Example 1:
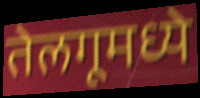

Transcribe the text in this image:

तेलगूमध्ये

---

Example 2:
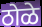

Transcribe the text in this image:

ठोळे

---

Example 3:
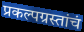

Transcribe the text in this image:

प्रकल्पग्रस्तांचं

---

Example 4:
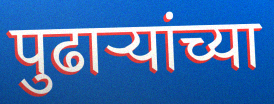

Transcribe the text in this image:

पुढाऱ्यांच्या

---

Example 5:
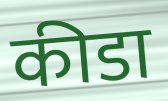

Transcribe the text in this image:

कीडा